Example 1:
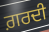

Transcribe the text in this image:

ਗ਼ਰਦੀ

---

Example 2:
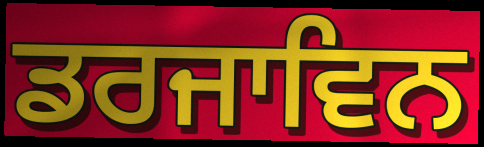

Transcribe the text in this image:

ਡਰਜਾਵਿਨ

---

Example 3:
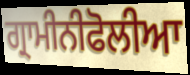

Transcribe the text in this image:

ਗ੍ਰਾਮੀਨੀਫੋਲੀਆ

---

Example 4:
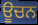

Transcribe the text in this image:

ਊਚਨ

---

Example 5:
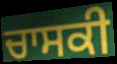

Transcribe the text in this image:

ਚਾਸਕੀ